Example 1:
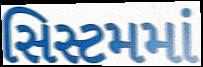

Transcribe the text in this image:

સિસ્ટમમાં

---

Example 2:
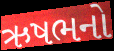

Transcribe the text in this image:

ઋષભનો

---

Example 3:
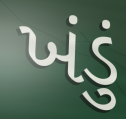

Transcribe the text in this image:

ખંડું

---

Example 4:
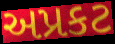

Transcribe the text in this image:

અપ્રકટ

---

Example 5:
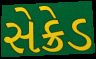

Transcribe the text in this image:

સેક્રેડ